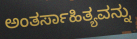
ಅಂತರ್ಸಾಹಿತ್ಯವನ್ನು